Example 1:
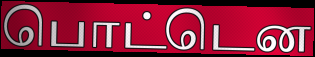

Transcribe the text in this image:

பொட்டென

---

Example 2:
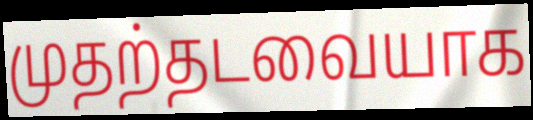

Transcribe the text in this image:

முதற்தடவையாக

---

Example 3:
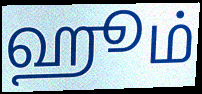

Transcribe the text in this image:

ஹூம்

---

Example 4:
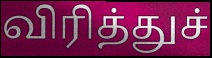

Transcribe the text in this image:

விரித்துச்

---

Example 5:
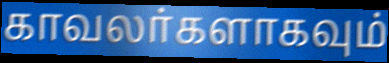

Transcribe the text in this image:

காவலர்களாகவும்